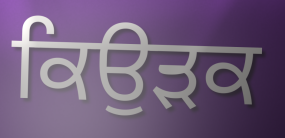
ਕਿਉੜਕ